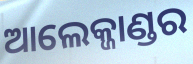
ଆଲେକ୍ଜାଣ୍ଡର